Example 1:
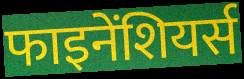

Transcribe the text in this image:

फाइनेंशियर्स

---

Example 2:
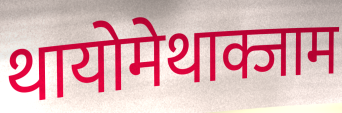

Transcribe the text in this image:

थायोमेथाक्जाम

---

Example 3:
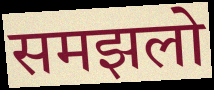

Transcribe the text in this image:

समझलो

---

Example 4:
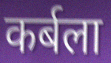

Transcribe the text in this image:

कर्बला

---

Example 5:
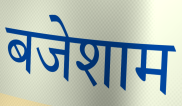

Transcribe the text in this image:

बजेशाम